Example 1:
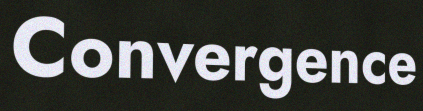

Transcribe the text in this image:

Convergence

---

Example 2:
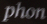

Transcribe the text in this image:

phon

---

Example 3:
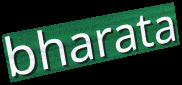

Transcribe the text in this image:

bharata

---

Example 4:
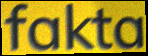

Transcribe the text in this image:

fakta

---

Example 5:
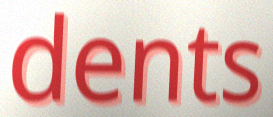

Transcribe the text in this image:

dents